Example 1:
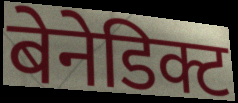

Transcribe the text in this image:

बेनेडिक्ट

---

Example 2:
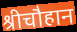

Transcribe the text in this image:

श्रीचौहान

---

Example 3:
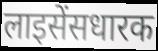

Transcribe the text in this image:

लाइसेंसधारक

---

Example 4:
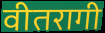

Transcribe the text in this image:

वीतरागी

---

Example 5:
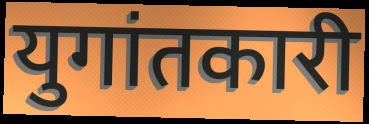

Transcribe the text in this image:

युगांतकारी